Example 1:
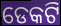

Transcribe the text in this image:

ଡେକଟି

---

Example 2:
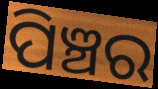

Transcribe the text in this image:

ପିଞ୍ଚର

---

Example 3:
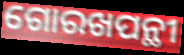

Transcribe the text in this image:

ଗୋରଖପନ୍ଥୀ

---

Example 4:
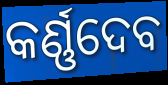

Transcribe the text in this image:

କର୍ଣ୍ଣଦେବ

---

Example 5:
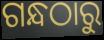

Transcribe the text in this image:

ଗନ୍ଧଠାରୁ